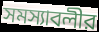
সমস্যাবলীর